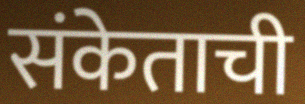
संकेताची